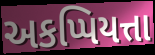
અકપ્પિયત્તા